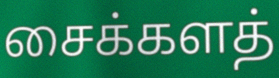
சைக்களத்